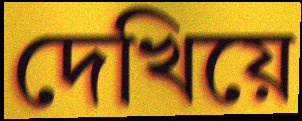
দেখিয়ে